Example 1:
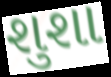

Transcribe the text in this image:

શુશા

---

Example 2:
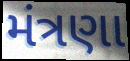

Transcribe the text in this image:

મંત્રણા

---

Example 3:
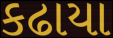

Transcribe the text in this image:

કઢાયા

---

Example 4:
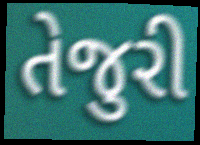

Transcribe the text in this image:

તેજુરી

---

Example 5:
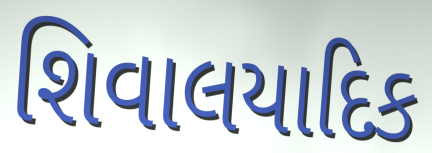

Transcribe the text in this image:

શિવાલયાદિક